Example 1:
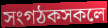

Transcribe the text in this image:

সংগঠকসকলে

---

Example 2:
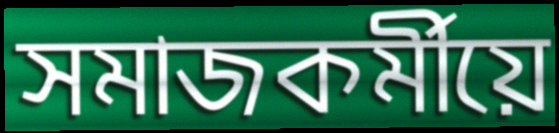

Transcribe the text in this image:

সমাজকৰ্মীয়ে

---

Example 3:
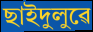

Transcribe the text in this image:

ছাইদুলুৱে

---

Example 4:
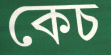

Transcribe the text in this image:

কেচ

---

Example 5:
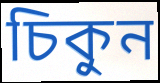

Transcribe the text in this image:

চিকুন